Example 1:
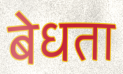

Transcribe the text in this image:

बेधता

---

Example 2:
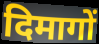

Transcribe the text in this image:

दिमागों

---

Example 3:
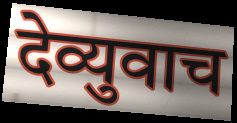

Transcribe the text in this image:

देव्युवाच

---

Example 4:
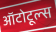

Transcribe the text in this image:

ऑटोटूल्स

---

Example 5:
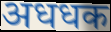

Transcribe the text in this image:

अधधक